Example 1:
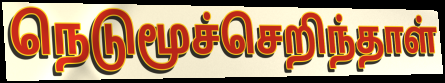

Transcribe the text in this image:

நெடுமூச்செறிந்தாள்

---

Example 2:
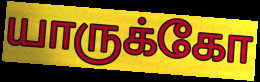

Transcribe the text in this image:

யாருக்கோ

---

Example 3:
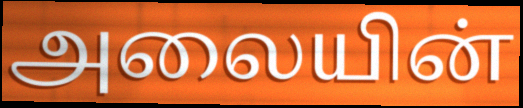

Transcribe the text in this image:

அலையின்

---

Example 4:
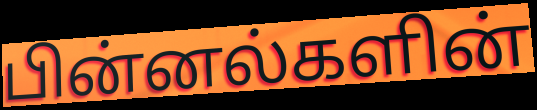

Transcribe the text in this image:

பின்னல்களின்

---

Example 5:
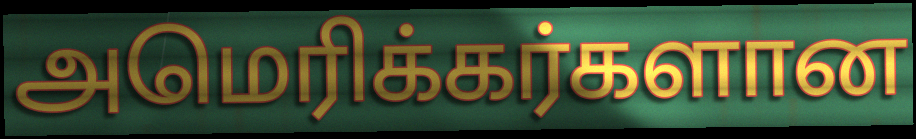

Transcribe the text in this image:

அமெரிக்கர்களான